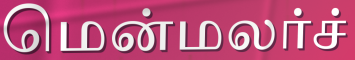
மென்மலர்ச்